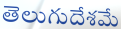
తెలుగుదేశమే